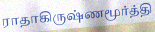
ராதாகிருஷ்ணமூர்த்தி